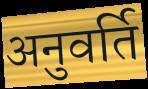
अनुवर्ति